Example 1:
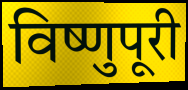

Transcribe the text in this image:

विष्णुपूरी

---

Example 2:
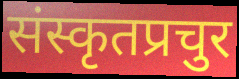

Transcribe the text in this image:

संस्कृतप्रचुर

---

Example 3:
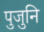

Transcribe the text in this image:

पुजुनि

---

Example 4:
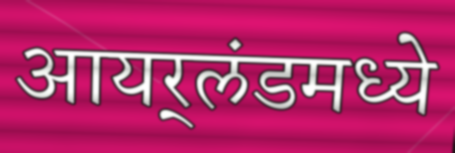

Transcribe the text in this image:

आयर्लंडमध्ये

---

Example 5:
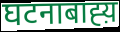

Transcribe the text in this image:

घटनाबाह्य़